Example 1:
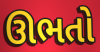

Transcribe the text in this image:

ઊભતો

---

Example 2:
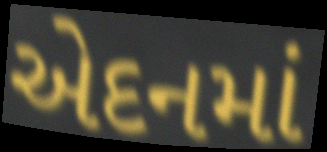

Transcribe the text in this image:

એદનમાં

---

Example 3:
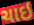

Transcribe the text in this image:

ચાઇ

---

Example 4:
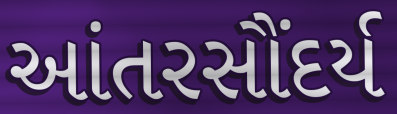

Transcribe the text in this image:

આંતરસૌંદર્ય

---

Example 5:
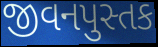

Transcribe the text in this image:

જીવનપુસ્તક